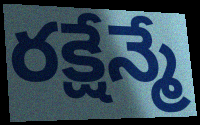
రక్షేన్మే